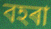
বহৰা